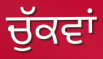
ਚੁੱਕਵਾਂ